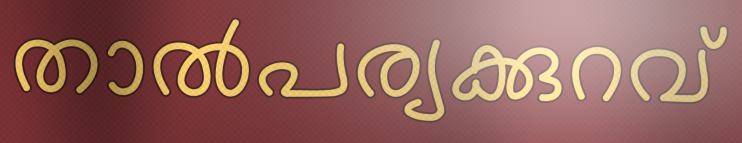
താൽപര്യക്കുറവ്